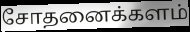
சோதனைக்களம்